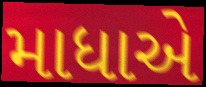
માધાએ